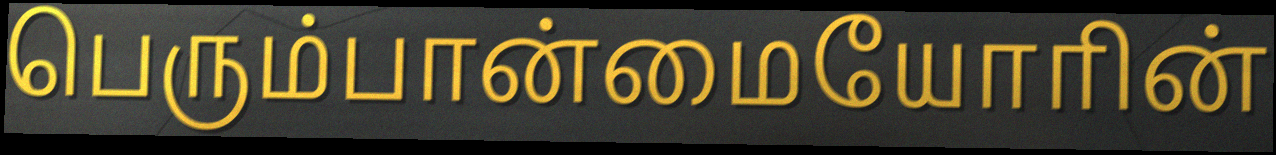
பெரும்பான்மையோரின்